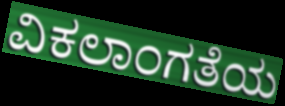
ವಿಕಲಾಂಗತೆಯ